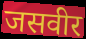
जसवीर